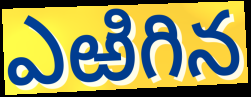
ఎఱిగిన